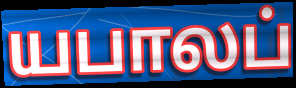
யபாலப்